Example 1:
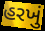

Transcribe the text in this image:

હરખું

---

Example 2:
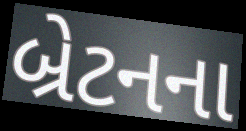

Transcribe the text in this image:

બ્રેટનના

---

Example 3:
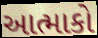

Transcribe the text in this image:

આત્માકો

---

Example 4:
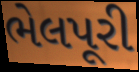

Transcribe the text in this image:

ભેલપૂરી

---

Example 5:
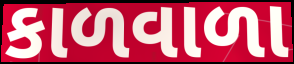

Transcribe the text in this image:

કાળવાળા